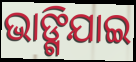
ଭାଙ୍ଗିଯାଇ